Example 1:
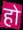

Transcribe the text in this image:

हो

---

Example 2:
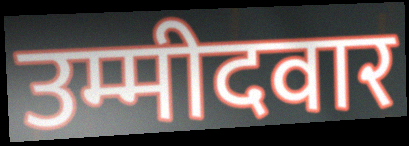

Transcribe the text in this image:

उम्‍मीदवार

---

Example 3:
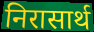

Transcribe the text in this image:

निरासार्थ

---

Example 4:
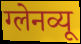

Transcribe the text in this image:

ग्लेनव्यू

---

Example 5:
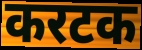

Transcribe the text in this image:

करटक